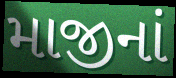
માજીનાં